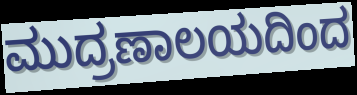
ಮುದ್ರಣಾಲಯದಿಂದ